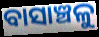
ବାସାଞ୍ଚଳୁ